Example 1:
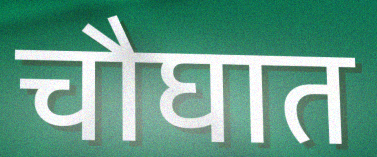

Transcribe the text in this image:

चौघात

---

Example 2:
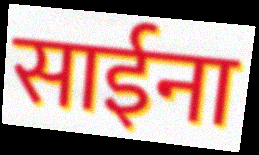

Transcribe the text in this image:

साईना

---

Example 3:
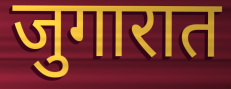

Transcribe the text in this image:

जुगारात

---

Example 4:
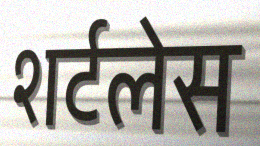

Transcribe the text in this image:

शर्टलेस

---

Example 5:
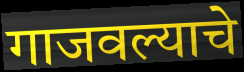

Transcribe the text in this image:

गाजवल्याचे